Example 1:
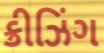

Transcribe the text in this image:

ક્રીઝિંગ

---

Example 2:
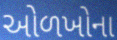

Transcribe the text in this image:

ઓળખોના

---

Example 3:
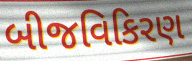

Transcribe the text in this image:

બીજવિકિરણ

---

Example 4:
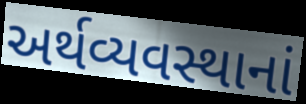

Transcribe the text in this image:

અર્થવ્યવસ્થાનાં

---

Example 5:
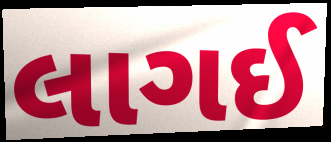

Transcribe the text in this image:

લાગઈ